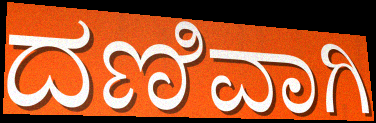
ದಣಿವಾಗಿ